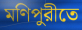
মণিপুরীতে